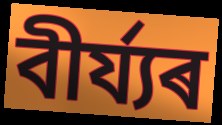
বীৰ্য্যৰ